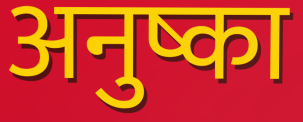
अनुष्का